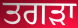
ਤਗੜਾ